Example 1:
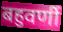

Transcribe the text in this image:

बहुवर्णी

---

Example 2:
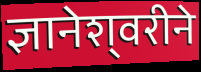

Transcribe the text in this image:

ज्ञानेश्वरीने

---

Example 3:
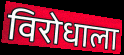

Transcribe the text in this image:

विरोधाला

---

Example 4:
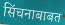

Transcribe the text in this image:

सिंचनाबाबत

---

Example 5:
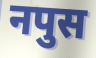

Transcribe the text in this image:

नपुस